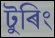
টুৰিং